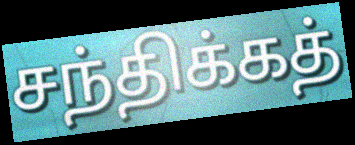
சந்திக்கத்